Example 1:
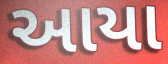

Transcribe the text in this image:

આયા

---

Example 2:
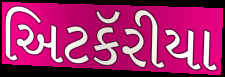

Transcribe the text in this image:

અિટકૅરીયા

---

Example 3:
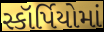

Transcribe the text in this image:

સ્કૉર્પિયોમાં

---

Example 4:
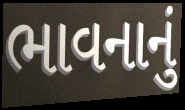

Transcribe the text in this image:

ભાવનાનું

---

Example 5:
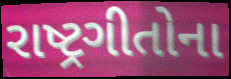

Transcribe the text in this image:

રાષ્ટ્રગીતોના